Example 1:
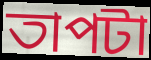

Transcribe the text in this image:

তাপটা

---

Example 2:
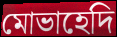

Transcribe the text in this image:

মোভাহেদি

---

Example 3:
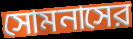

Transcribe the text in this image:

সোমনাসের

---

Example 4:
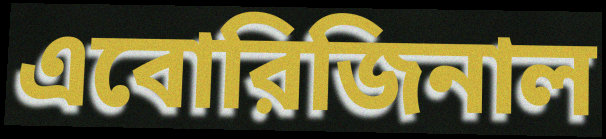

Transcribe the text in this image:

এবোরিজিনাল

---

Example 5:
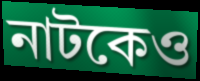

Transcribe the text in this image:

নাটকেও